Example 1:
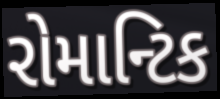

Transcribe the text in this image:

રોમાન્ટિક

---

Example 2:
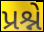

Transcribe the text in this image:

પ્રશ્ને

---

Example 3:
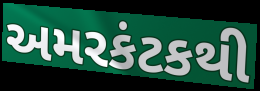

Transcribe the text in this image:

અમરકંટકથી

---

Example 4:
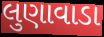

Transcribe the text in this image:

લુણાવાડા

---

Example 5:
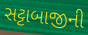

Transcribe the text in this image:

સટ્ટાબાજીની